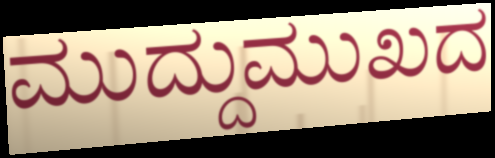
ಮುದ್ದುಮುಖದ